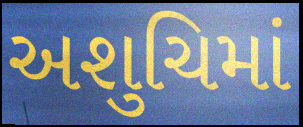
અશુચિમાં